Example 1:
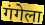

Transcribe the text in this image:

गंगेला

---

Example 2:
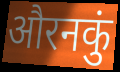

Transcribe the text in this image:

औरनकुं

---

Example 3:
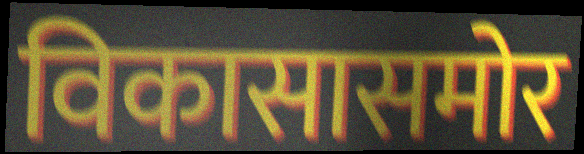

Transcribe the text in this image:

विकासासमोर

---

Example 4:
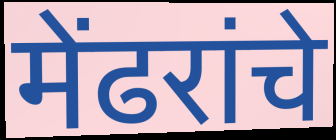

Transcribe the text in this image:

मेंढरांचे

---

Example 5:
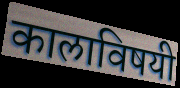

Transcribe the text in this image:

कालाविषयी